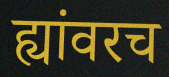
ह्यांवरच